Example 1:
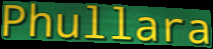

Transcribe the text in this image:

Phullara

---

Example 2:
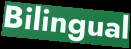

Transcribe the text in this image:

Bilingual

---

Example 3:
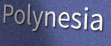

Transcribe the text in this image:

Polynesia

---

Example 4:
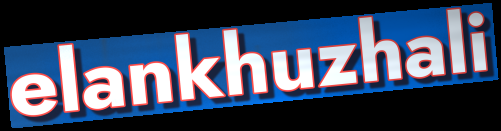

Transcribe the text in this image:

elankhuzhali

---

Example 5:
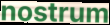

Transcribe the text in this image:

nostrum